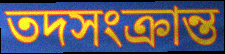
তদসংক্রান্ত